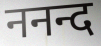
ननन्द